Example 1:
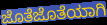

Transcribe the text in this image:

ಜೊತೆಜೊತೆಯಾಗಿ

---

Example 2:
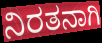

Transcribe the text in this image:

ನಿರತನಾಗಿ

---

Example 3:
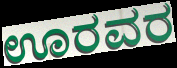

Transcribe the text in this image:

ಊರವರ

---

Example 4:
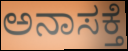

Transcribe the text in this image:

ಅನಾಸಕ್ತೆ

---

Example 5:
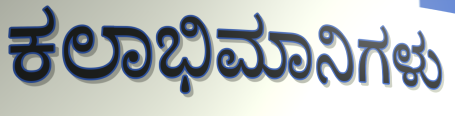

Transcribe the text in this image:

ಕಲಾಭಿಮಾನಿಗಳು